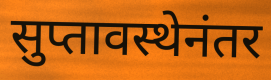
सुप्तावस्थेनंतर